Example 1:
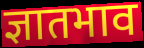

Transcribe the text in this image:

ज्ञातभाव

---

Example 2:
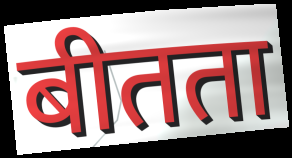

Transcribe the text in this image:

बीतता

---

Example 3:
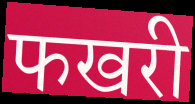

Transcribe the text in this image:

फखरी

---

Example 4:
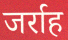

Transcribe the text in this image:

जर्राह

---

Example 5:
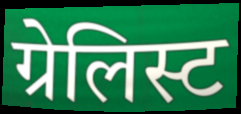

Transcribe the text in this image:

ग्रेलिस्ट